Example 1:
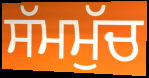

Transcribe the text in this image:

ਸੱਮਮੁੱਚ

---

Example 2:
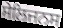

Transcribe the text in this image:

ਸੇਲਿਜਨਸ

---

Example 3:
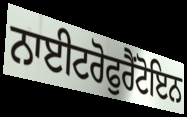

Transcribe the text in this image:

ਨਾਈਟਰੋਫੁਰੈਂਟੋਇਨ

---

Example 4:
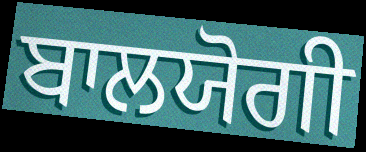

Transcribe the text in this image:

ਬਾਲਯੋਗੀ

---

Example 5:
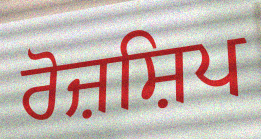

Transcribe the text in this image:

ਰੋਜ਼ਸ਼ਿਪ